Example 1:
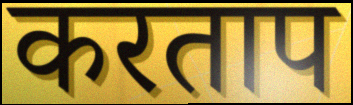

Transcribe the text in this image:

करताप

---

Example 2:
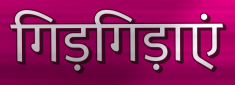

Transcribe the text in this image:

गिड़गिड़ाएं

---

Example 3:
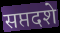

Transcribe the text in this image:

सप्तदशे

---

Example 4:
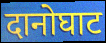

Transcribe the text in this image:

दानोघाट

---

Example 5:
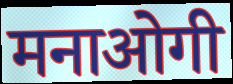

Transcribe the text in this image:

मनाओगी